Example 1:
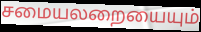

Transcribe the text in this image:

சமையலறையையும்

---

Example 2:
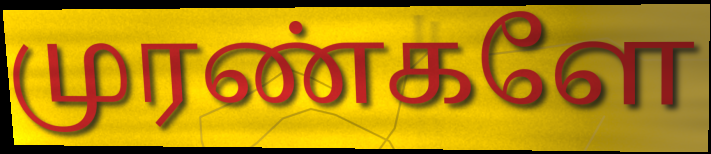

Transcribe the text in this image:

முரண்களே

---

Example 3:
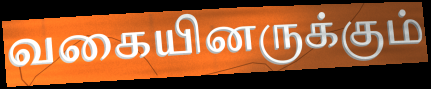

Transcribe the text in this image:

வகையினருக்கும்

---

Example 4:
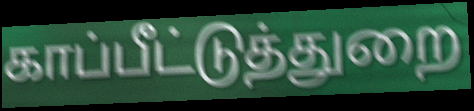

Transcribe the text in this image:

காப்பீட்டுத்துறை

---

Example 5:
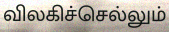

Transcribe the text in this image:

விலகிச்செல்லும்